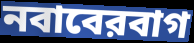
নবাবেরবাগ